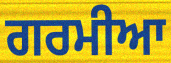
ਗਰਮੀਆ